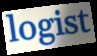
logist